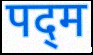
पद्‌म